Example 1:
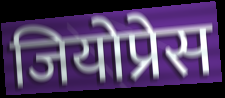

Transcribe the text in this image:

जियोप्रेस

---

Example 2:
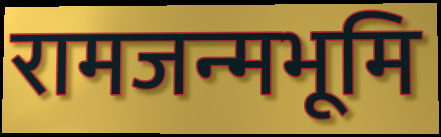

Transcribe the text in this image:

रामजन्मभूमि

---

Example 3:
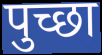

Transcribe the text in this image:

पुच्छा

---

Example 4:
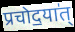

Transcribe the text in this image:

प्रचो॒दया॑त्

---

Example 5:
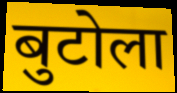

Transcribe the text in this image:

बुटोला